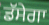
ਡੱਸੇਗਾ